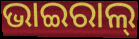
ଭାଇରାଲ୍